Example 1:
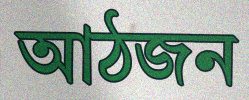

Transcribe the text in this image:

আঠজন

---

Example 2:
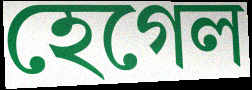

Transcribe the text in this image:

হেগেল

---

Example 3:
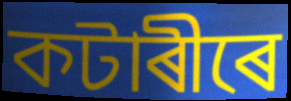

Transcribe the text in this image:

কটাৰীৰে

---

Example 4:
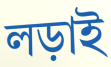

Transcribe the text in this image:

লড়াই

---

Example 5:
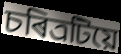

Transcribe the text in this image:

চৰিত্ৰটিয়ে